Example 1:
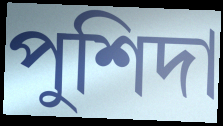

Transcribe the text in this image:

পুশিদা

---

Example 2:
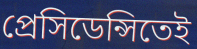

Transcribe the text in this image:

প্রেসিডেন্সিতেই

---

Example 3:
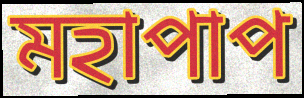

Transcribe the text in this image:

মহাপাপ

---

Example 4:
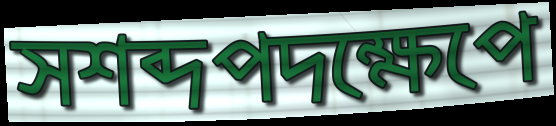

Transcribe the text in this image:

সশব্দপদক্ষেপে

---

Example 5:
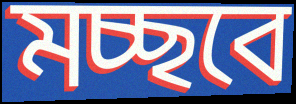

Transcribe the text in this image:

মচ্ছবে